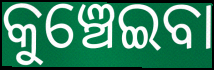
କୁଞ୍ଚେଇବା